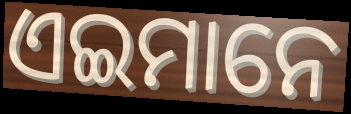
ଏଇମାନେ